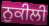
ਨੁਕੀਲੀ